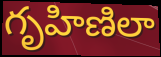
గృహిణిలా